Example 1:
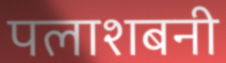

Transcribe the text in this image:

पलाशबनी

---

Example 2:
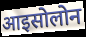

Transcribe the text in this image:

आइसोलोन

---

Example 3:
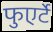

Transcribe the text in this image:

फुएर्टे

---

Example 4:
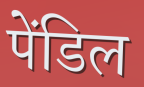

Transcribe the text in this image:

पेंडिल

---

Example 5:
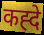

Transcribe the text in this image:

कह्दे